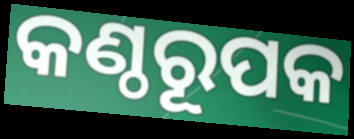
କଣ୍ଠରୂପକ